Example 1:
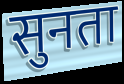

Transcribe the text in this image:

सुनता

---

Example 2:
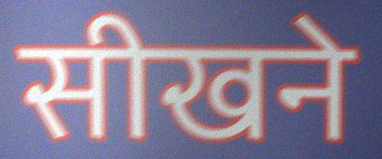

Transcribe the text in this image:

सीखने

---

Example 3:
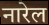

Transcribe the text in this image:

नारेल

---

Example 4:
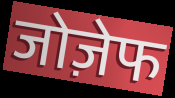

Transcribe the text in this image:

जोज़ेफ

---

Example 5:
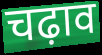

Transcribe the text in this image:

चढ़ाव